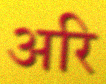
अरि